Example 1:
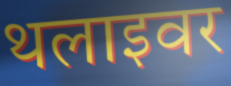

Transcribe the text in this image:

थलाइवर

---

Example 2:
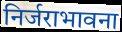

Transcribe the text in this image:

निर्जराभावना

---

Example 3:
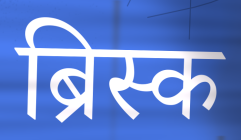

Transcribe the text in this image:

ब्रिस्क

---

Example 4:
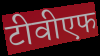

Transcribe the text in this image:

टीवीएफ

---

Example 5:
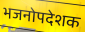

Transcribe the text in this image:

भजनोपदेशक